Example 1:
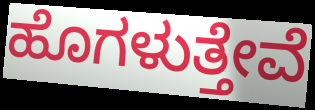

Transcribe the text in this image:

ಹೊಗಳುತ್ತೇವೆ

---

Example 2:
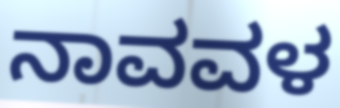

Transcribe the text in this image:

ನಾವವಳ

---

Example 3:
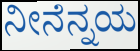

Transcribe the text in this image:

ನೀನೆನ್ನಯ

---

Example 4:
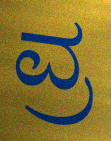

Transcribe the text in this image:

ವ್ರ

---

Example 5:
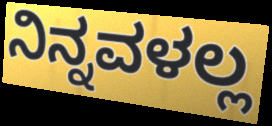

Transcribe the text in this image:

ನಿನ್ನವಳಲ್ಲ